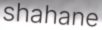
shahane